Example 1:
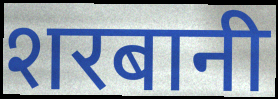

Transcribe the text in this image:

शरबानी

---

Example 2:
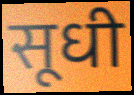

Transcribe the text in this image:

सूधी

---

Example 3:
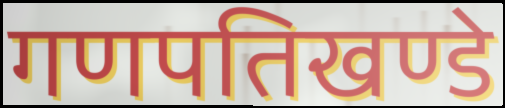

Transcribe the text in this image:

गणपतिखण्डे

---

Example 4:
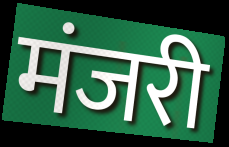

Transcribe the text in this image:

मंजरी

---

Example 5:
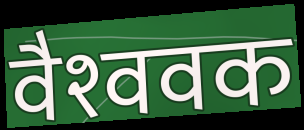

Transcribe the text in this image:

वैश्ववक